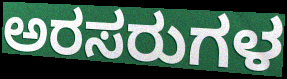
ಅರಸರುಗಳ